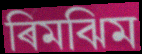
ৰিমঝিম